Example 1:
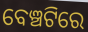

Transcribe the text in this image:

ବେଞ୍ଚଟିରେ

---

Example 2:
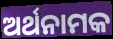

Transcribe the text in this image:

ଅର୍ଥନାମକ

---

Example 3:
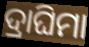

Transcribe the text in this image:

ଦ୍ରାଘିମା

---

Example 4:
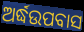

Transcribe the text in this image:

ଅର୍ଦ୍ଧଉପବାସ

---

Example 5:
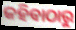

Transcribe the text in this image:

କହିବାଠାରୁ